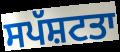
ਸਪੱਸ਼ਟਤਾ